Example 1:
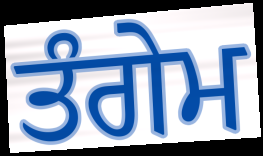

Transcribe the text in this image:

ਤੰਗੇਮ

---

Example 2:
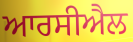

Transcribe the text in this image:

ਆਰਸੀਐਲ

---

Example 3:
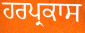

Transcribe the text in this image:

ਹਰਪ੍ਰਕਾਸ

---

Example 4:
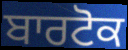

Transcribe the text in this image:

ਬਾਰਟੋਕ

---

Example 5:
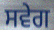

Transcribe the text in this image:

ਸਵੇਗ